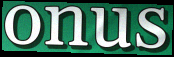
onus